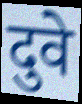
दुवे